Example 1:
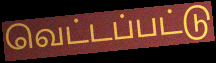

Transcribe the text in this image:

வெட்டப்பட்டு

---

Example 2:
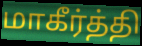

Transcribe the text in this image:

மாகீர்த்தி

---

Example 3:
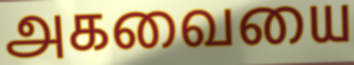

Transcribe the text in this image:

அகவையை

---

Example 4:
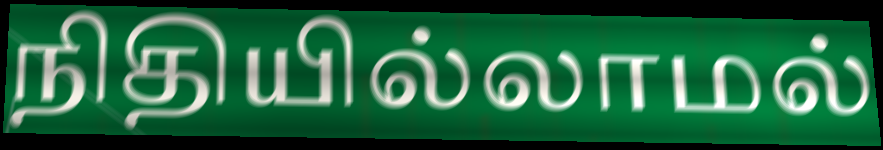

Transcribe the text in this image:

நிதியில்லாமல்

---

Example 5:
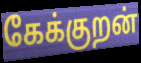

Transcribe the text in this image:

கேக்குறன்